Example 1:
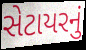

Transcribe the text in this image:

સેટાયરનું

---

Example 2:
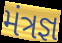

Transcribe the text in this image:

મંત્રજ્ઞ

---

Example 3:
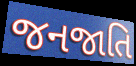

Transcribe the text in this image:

જનજાતિ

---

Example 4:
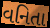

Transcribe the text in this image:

વનિતા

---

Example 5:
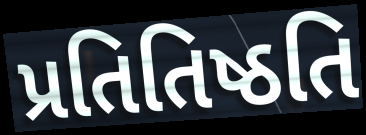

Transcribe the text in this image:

પ્રતિતિષ્ઠતિ